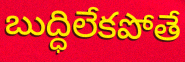
బుద్ధిలేకపోతే